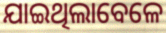
ଯାଇଥିଲାବେଳେ